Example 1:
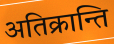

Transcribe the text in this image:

अतिक्रान्ति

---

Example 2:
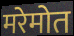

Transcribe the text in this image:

मरेमोत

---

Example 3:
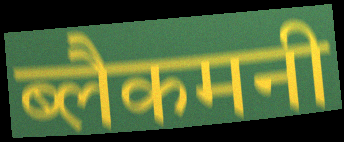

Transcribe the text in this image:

ब्‍लैकमनी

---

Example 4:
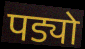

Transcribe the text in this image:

पड्यो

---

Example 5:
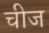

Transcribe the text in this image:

चीज